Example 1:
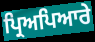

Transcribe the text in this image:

ਪ੍ਰਿਅਪਿਆਰੇ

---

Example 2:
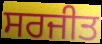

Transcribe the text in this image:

ਸਰਜੀਤ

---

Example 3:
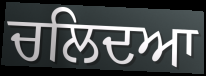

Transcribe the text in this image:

ਚਲਿਦਆ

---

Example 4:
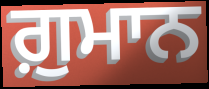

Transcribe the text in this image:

ਗ਼ੁਮਾਨ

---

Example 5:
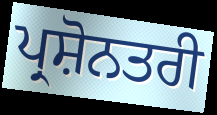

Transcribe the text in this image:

ਪ੍ਰਸ਼ੋਨਤਰੀ